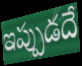
ఇప్పుడదే